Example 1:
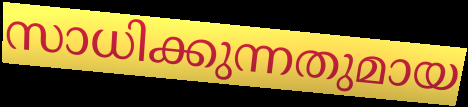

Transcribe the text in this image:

സാധിക്കുന്നതുമായ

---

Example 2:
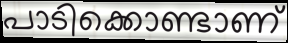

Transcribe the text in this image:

പാടിക്കൊണ്ടാണ്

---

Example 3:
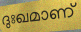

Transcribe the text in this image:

ദുഃഖമാണ്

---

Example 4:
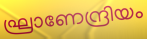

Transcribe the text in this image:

ഘ്രാണേന്ദ്രിയം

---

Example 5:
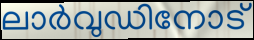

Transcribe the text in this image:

ലാർവുഡിനോട്